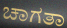
ಚಾಗತಾ